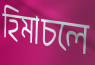
হিমাচলে